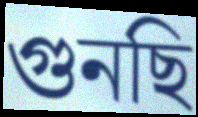
গুনছি